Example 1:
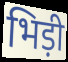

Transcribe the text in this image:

भिड़ी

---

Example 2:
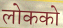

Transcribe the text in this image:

लोकको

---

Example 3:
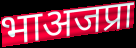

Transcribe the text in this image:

भाअजप्रा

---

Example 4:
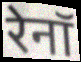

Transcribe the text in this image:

रेनॉ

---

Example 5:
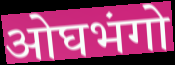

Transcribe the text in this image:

ओघभंगो